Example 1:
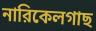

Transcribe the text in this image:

নারিকেলগাছ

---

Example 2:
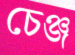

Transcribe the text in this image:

চেঞ্জ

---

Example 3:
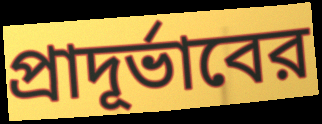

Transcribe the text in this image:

প্রাদূর্ভাবের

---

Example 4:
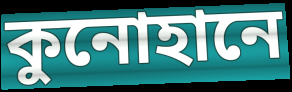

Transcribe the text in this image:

কুনোহানে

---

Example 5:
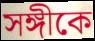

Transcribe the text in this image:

সঙ্গীকে